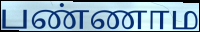
பண்ணாம